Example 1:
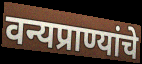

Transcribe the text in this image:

वन्यप्राण्यांचे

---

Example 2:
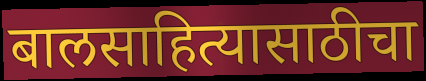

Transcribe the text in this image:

बालसाहित्यासाठीचा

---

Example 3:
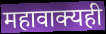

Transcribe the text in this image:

महावाक्यही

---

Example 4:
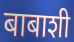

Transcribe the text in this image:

बाबाशी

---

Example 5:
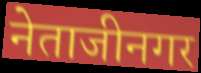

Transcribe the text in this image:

नेताजीनगर